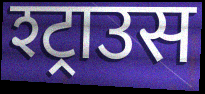
श्ट्राउस